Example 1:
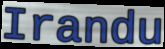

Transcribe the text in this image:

Irandu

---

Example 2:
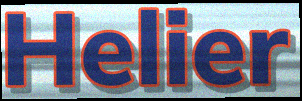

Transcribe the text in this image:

Helier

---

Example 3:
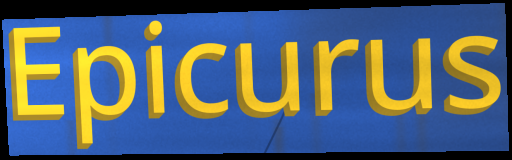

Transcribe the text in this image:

Epicurus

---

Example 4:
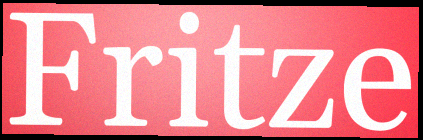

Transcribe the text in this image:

Fritze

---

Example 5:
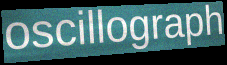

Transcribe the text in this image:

oscillograph